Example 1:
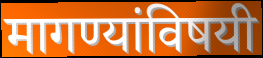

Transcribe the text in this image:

मागण्यांविषयी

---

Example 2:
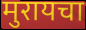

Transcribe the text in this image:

मुरायचा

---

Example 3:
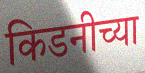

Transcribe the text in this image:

किडनीच्या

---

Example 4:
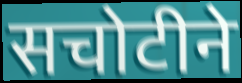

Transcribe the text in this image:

सचोटीने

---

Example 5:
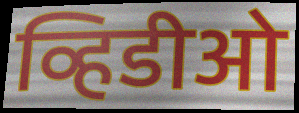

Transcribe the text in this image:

व्हिडीओ